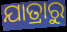
ଯାତ୍ରାରୁ